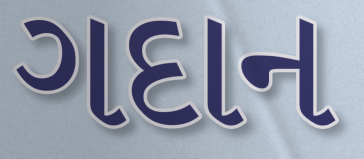
ગદાન